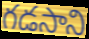
గడసాని